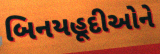
બિનયહૂદીઓને